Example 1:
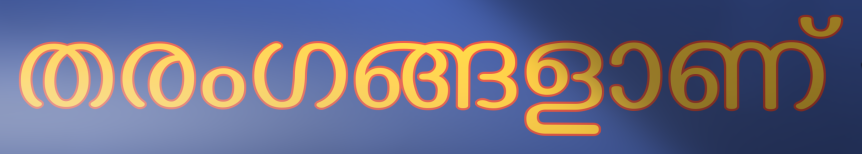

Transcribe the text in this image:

തരംഗങ്ങളാണ്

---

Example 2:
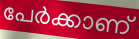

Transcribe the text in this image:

പേർക്കാണ്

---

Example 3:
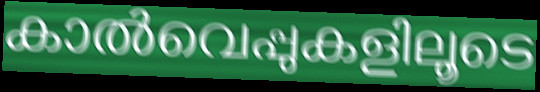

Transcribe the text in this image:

കാൽവെപ്പുകളിലൂടെ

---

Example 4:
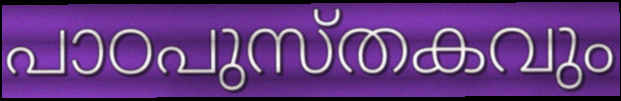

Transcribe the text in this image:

പാഠപുസ്തകവും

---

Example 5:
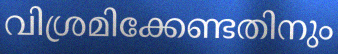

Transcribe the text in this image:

വിശ്രമിക്കേണ്ടതിനും